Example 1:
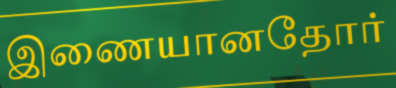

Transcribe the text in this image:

இணையானதோர்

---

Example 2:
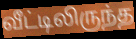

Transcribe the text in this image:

வீட்டிலிருந்த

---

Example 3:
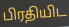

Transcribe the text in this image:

பிரதியிட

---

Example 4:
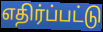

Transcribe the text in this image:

எதிர்ப்பட்டு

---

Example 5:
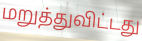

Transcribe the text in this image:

மறுத்துவிட்டது